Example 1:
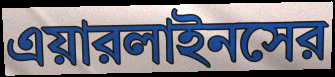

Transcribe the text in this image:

এয়ারলাইনসের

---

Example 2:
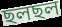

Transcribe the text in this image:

ছলছল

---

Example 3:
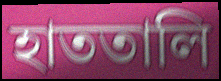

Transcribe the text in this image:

হাততালি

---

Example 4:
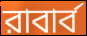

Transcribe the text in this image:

রাবার্ব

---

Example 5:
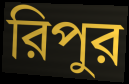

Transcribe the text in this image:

রিপুর